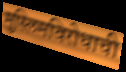
मुस्लिमविरोधाची